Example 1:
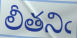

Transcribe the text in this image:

లీతనిఁ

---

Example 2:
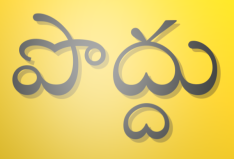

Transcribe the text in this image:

పొద్దు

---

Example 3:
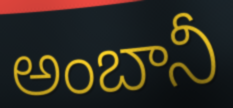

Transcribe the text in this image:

అంబానీ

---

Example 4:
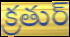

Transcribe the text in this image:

క్రతుర్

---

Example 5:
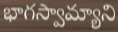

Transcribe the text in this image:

భాగస్వామ్యాని